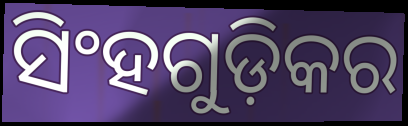
ସିଂହଗୁଡ଼ିକର